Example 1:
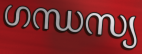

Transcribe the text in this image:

ഗന്ധസ്യ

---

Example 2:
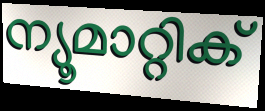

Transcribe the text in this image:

ന്യൂമാറ്റിക്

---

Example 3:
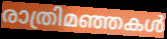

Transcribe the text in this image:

രാത്രിമഞ്ഞകൾ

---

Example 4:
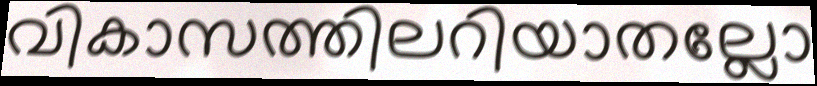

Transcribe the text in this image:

വികാസത്തിലറിയാതല്ലോ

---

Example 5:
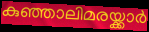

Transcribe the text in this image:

കുഞ്ഞാലിമരയ്ക്കാർ